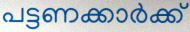
പട്ടണക്കാർക്ക്